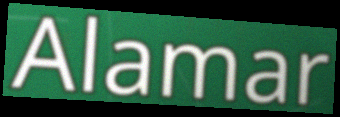
Alamar